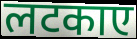
लटकाए